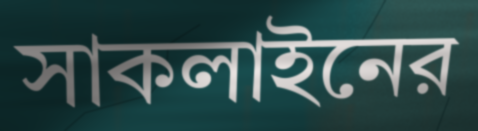
সাকলাইনের